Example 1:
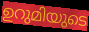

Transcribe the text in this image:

ഉറുമിയുടെ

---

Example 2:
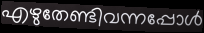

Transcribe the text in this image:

എഴുതേണ്ടിവന്നപ്പോൾ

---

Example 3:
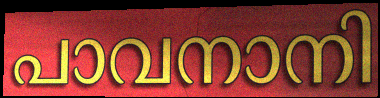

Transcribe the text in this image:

പാവനാനി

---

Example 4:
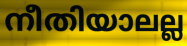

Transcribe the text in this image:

നീതിയാലല്ല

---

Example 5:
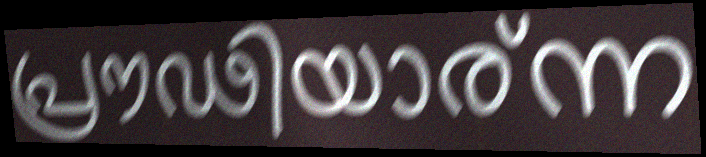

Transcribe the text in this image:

പ്രൗഢിയാര്ന്ന